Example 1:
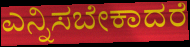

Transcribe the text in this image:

ಎನ್ನಿಸಬೇಕಾದರೆ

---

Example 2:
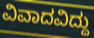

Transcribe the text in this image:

ವಿವಾದವಿದ್ದು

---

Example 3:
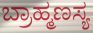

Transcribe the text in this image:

ಬ್ರಾಹ್ಮಣಸ್ಯ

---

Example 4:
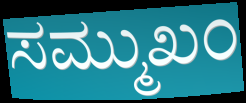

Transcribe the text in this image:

ಸಮ್ಮುಖಂ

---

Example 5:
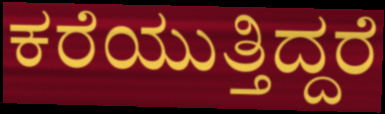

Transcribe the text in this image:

ಕರೆಯುತ್ತಿದ್ದರೆ